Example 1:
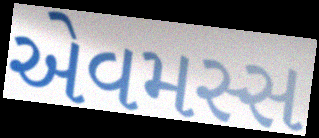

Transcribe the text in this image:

એવમસ્સ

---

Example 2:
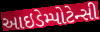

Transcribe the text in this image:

આઇડેમ્પોટેન્સી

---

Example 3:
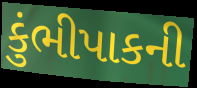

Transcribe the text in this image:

કુંભીપાકની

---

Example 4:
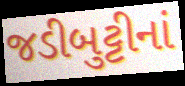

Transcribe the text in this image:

જડીબુટ્ટીનાં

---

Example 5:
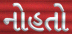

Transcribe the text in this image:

નોહતો